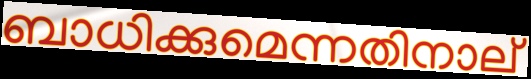
ബാധിക്കുമെന്നതിനാല്